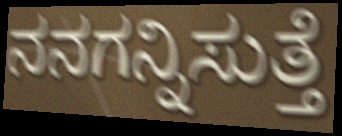
ನನಗನ್ನಿಸುತ್ತೆ